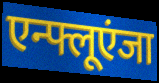
एन्फ्लूएंजा